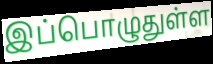
இப்பொழுதுள்ள